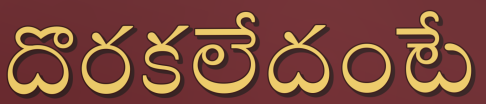
దొరకలేదంటే